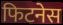
फिटनेस